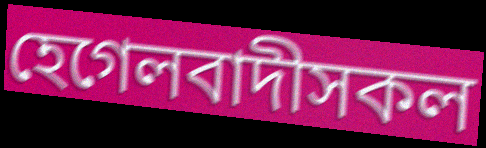
হেগেলবাদীসকল